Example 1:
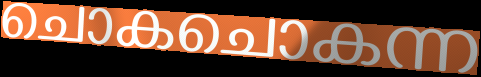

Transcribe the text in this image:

ചൊകചൊകന്ന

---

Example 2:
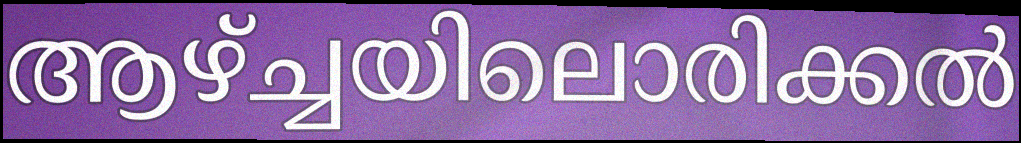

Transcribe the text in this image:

ആഴ്ച്ചയിലൊരിക്കൽ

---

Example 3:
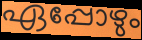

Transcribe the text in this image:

ഏപ്പോഴും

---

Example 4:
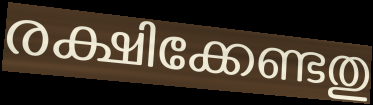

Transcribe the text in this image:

രക്ഷിക്കേണ്ടതു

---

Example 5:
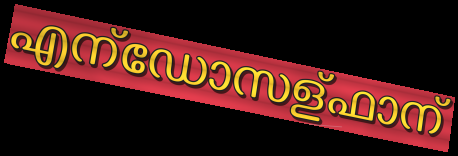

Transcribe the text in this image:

എന്ഡോസള്ഫാന്